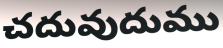
చదువుదుము